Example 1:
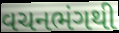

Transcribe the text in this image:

વચનભંગથી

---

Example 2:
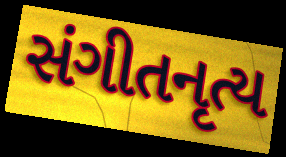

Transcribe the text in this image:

સંગીતનૃત્ય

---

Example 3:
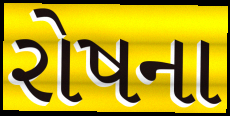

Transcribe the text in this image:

રોષના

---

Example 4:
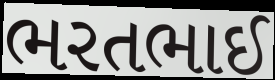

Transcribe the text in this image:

ભરતભાઈ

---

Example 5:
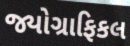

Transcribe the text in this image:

જ્યોગ્રાફિકલ